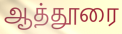
ஆத்தூரை